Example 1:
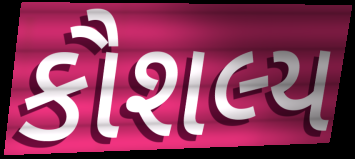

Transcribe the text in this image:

કૌશલ્ય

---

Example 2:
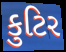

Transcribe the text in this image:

કુટિર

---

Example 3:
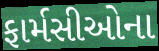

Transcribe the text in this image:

ફાર્મસીઓના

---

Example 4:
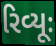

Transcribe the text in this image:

રિવ્યૂઃ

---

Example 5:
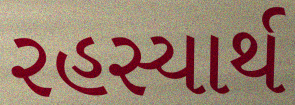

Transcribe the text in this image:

રહસ્યાર્થ